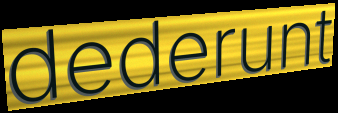
dederunt